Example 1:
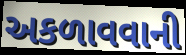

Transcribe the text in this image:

અકળાવવાની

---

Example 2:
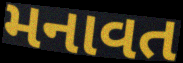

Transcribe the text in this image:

મનાવત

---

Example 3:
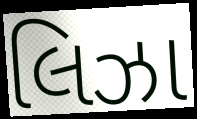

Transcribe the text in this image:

લિઝા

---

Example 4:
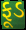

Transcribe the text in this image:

ફૂડ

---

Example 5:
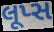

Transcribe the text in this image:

લૂપ્સ